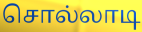
சொல்லாடி